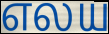
எலய